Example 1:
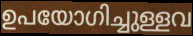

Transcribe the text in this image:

ഉപയോഗിച്ചുള്ളവ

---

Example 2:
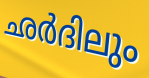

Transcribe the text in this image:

ഛർദിലും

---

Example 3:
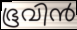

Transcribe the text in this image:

ഭൂവിൻ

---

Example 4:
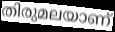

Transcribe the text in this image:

തിരുമലയാണ്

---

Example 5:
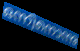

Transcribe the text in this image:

ഒന്നിനൊന്നു